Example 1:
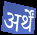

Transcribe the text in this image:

अर्थें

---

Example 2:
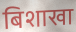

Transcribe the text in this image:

बिशाखा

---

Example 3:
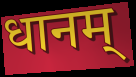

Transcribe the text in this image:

धानम्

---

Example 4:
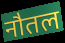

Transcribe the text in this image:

नौतल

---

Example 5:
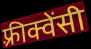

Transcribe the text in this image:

फ़्रीक्वेंसी